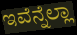
ಇವೆನ್ನೆಲ್ಲಾ